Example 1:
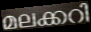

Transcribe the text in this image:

മലക്കറി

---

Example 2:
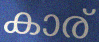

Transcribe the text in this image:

കാര്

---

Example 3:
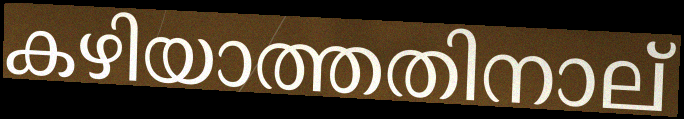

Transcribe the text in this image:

കഴിയാത്തതിനാല്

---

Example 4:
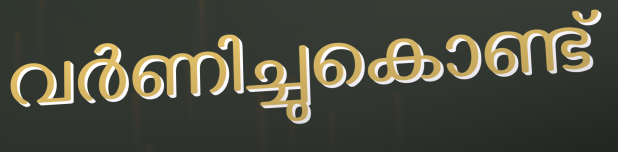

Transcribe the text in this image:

വർണിച്ചുകൊണ്ട്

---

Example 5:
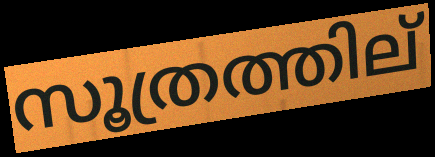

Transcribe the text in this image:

സൂത്രത്തില്